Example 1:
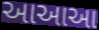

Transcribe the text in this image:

આઆઆ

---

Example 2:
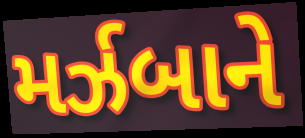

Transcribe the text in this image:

મર્ઝબાને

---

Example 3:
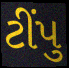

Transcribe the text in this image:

ટીંપુ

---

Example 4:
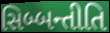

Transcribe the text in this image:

સિબ્બન્તીતિ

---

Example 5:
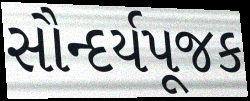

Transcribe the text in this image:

સૌન્દર્યપૂજક